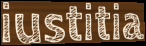
iustitia